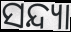
ସନ୍ଦ୍ୟା